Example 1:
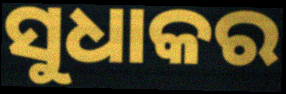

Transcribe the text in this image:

ସୁଧାକର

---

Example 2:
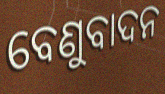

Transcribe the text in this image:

ବେଣୁବାଦନ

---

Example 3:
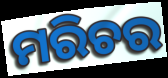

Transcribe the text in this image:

ମରିଚର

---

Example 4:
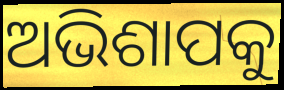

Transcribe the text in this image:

ଅଭିଶାପକୁ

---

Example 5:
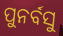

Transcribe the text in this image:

ପୁନର୍ବସୁ